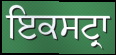
ਇਕਸਟ੍ਰਾ